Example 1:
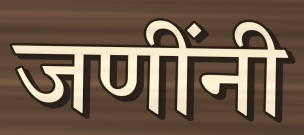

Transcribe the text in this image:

जणींनी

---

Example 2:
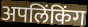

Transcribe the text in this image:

अपलिंकिंग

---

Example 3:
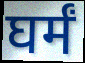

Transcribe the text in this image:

घर्मं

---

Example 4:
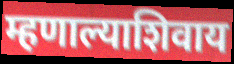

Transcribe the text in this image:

म्हणाल्याशिवाय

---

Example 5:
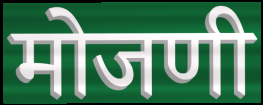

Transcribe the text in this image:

मोजणी